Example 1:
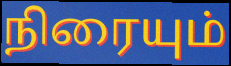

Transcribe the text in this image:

நிரையும்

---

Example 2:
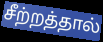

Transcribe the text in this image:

சீற்றத்தால்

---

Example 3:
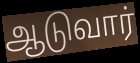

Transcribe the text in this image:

ஆடுவார்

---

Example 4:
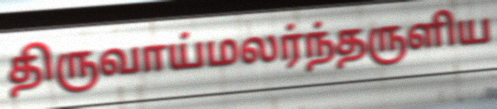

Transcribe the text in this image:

திருவாய்மலர்ந்தருளிய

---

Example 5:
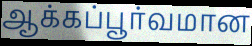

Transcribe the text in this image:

ஆக்கப்பூர்வமான